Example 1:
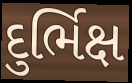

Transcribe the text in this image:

દુર્ભિક્ષ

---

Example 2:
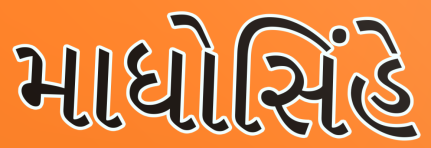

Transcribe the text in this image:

માધોસિંહે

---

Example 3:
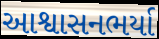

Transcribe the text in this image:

આશ્વાસનભર્યા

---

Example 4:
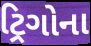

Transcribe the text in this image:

ટ્રિગોના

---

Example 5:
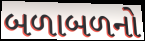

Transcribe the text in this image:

બળાબળનો